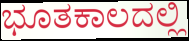
ಭೂತಕಾಲದಲ್ಲಿ